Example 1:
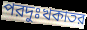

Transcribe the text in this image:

পরদুঃখকাতর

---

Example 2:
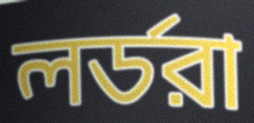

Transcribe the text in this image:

লর্ডরা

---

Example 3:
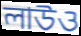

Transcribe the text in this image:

লাউও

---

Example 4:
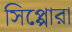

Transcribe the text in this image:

সিপ্পোরা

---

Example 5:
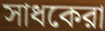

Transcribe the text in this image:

সাধকেরা